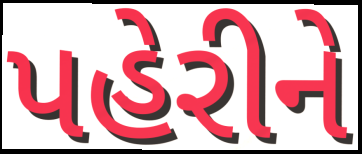
પહેરીને